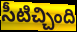
సీటిచ్చింది